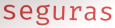
seguras